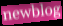
newblog